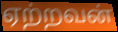
ஏற்றவன்